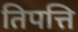
तिपत्ति